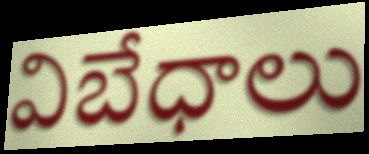
విబేధాలు